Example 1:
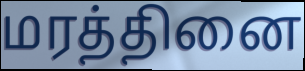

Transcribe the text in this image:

மரத்தினை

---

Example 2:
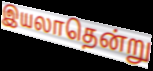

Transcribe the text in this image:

இயலாதென்று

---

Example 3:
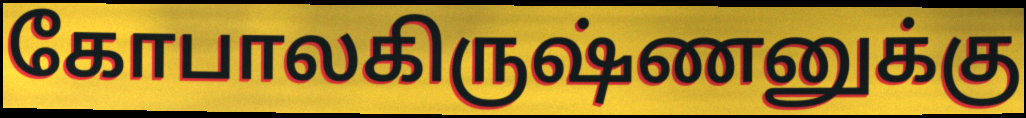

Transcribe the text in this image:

கோபாலகிருஷ்ணனுக்கு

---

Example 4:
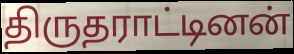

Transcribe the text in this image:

திருதராட்டினன்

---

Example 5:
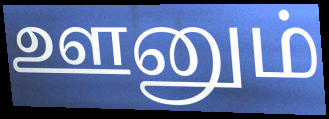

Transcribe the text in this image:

ஊனும்